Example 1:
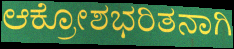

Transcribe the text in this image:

ಆಕ್ರೋಶಭರಿತನಾಗಿ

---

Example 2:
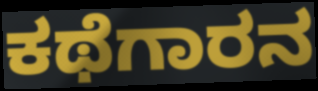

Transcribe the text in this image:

ಕಥೆಗಾರನ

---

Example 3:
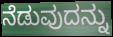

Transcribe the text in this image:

ನೆಡುವುದನ್ನು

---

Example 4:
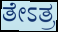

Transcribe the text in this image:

ತೇಽತ್ರ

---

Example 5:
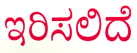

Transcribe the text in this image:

ಇರಿಸಲಿದೆ